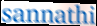
sannathi